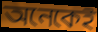
অনেকেই